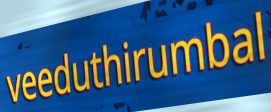
veeduthirumbal